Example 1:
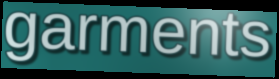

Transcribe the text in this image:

garments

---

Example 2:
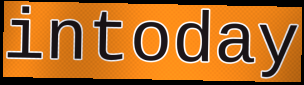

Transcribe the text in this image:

intoday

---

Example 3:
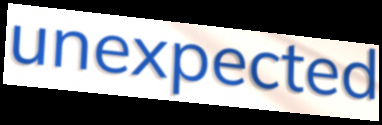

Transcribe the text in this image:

unexpected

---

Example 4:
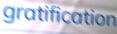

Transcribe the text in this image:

gratification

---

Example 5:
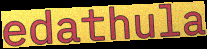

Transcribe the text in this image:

edathula